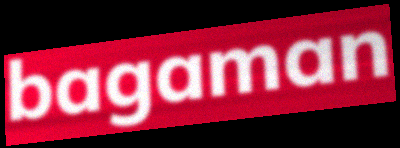
bagaman